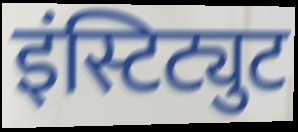
इंस्टिट्युट